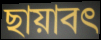
ছায়াবৎ